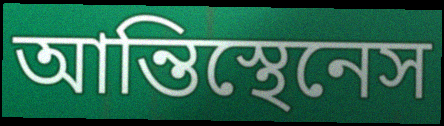
আন্তিস্থেনেস